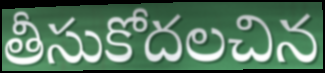
తీసుకోదలచిన